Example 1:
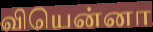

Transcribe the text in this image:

வியென்னா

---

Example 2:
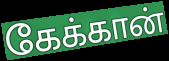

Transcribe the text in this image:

கேக்கான்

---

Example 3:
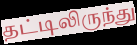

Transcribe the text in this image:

தட்டிலிருந்து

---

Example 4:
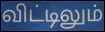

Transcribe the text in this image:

விட்டிலும்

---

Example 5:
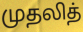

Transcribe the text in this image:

முதலித்